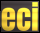
eci